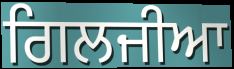
ਗਿਲਜੀਆ